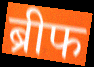
ब्रीफ